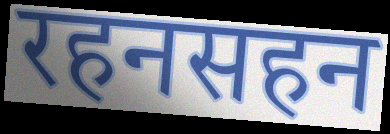
रहनसहन